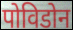
पोविडोन